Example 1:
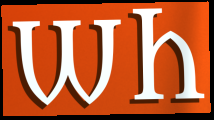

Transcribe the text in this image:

Wh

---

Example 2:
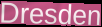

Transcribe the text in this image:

Dresden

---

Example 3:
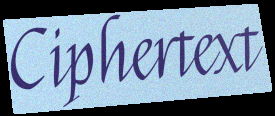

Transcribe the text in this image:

Ciphertext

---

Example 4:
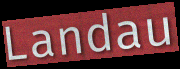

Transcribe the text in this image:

Landau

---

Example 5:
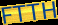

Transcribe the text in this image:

FTTH